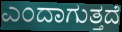
ಎಂದಾಗುತ್ತದೆ